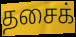
தசைக்